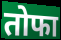
तोफा